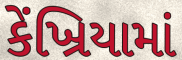
કેંખ્રિયામાં